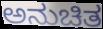
ಅನುಚಿತ